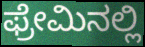
ಫ್ರೇಮಿನಲ್ಲಿ